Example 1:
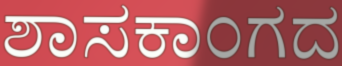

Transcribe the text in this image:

ಶಾಸಕಾಂಗದ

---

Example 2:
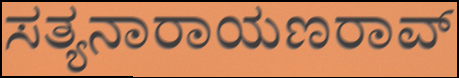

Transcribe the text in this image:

ಸತ್ಯನಾರಾಯಣರಾವ್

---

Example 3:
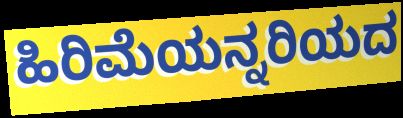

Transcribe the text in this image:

ಹಿರಿಮೆಯನ್ನರಿಯದ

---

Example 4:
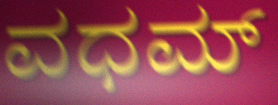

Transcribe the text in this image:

ವಧಮ್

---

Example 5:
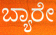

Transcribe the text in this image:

ಬ್ಯಾರೇ